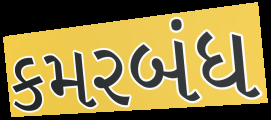
કમરબંધ